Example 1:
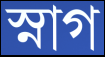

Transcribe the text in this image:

স্নাগ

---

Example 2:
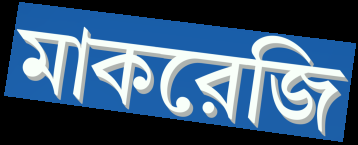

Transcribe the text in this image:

মাকরেজি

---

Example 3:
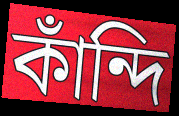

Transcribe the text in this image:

কাঁন্দি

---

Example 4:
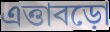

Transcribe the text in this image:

এত্তাবড়ো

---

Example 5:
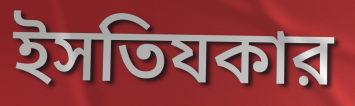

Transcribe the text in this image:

ইসতিযকার